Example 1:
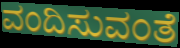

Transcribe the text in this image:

ವಂದಿಸುವಂತೆ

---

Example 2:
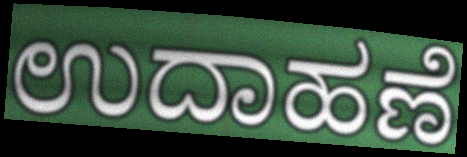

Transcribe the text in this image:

ಉದಾಹಣೆ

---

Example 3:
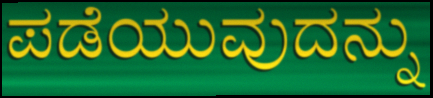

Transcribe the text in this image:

ಪಡೆಯುವುದನ್ನು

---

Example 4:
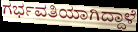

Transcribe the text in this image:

ಗರ್ಭವತಿಯಾಗಿದ್ದಾಳೆ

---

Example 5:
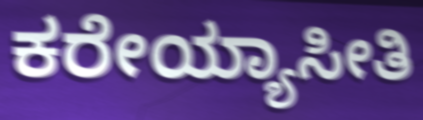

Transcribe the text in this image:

ಕರೇಯ್ಯಾಸೀತಿ